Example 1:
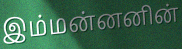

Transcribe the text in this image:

இம்மன்னனின்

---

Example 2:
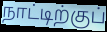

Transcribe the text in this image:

நாட்டிற்குப்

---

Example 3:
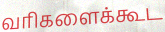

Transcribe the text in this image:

வரிகளைக்கூட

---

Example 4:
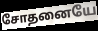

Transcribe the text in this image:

சோதனையே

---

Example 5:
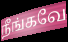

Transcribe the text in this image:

நீங்கவே